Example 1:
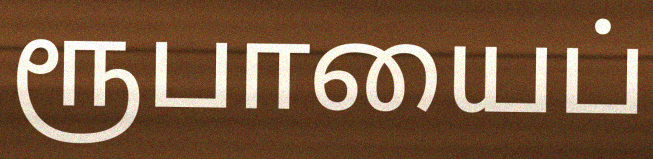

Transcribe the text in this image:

ரூபாயைப்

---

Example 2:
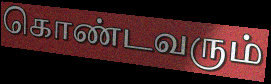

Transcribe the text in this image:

கொண்டவரும்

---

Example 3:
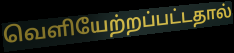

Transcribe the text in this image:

வெளியேற்றப்பட்டதால்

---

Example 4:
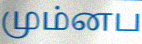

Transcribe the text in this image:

மும்னப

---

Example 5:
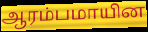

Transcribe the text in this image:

ஆரம்பமாயின